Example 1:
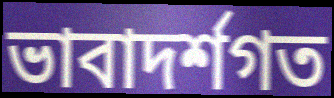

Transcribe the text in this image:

ভাবাদৰ্শগত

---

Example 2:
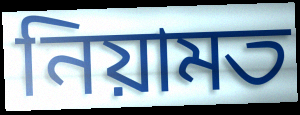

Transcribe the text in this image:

নিয়ামত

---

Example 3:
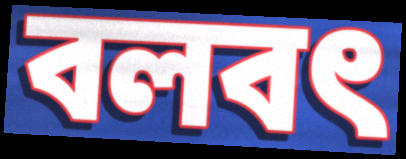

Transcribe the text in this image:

বলবৎ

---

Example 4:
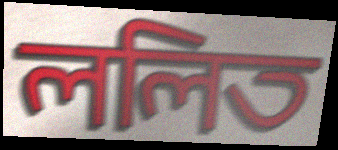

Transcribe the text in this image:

ললিত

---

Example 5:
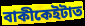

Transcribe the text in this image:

বাকীকেইটাত